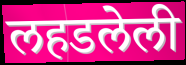
लहडलेली